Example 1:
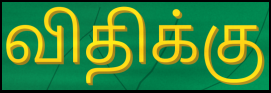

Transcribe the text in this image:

விதிக்கு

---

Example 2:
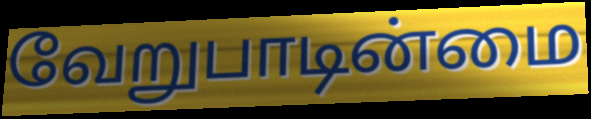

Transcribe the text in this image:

வேறுபாடின்மை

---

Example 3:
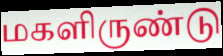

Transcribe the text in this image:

மகளிருண்டு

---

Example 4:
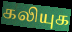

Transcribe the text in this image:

கலியுக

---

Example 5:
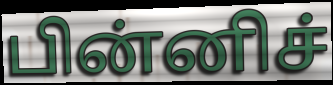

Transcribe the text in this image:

பின்னிச்